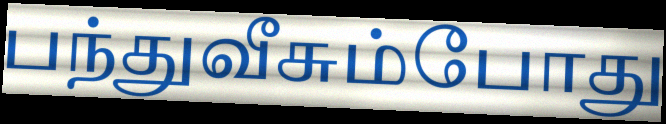
பந்துவீசும்போது